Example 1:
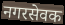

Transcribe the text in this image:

नगरसेवक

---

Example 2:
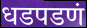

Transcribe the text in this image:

धडपडणं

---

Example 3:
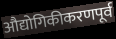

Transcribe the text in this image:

औद्योगिकीकरणपूर्व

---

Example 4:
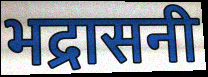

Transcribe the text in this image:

भद्रासनी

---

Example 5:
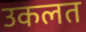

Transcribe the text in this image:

उकलत